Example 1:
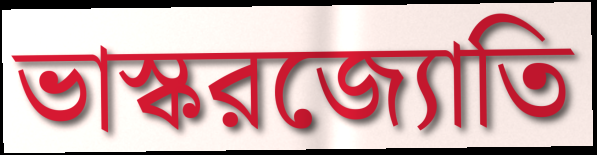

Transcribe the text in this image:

ভাস্করজ্যোতি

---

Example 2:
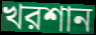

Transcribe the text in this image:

খরশান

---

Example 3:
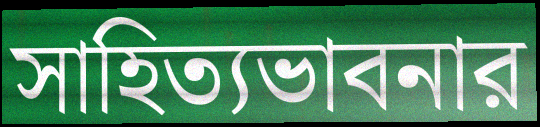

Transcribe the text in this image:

সাহিত্যভাবনার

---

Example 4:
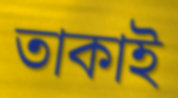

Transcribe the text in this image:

তাকাই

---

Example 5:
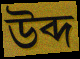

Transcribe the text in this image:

উব্দ